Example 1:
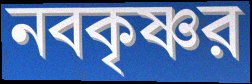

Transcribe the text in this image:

নবকৃষ্ণর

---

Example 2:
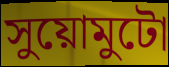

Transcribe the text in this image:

সুয়োমুটো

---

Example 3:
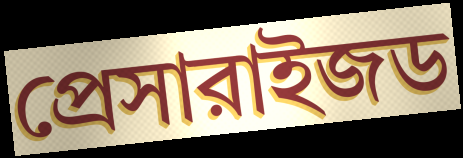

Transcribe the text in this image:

প্রেসারাইজড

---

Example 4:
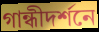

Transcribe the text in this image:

গান্ধীদর্শনে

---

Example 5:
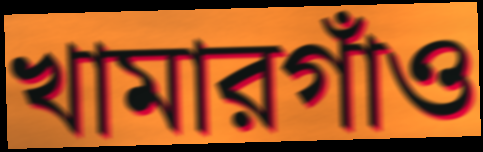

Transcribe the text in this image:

খামারগাঁও